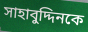
সাহাবুদ্দিনকে